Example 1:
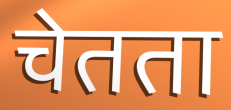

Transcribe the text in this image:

चेतता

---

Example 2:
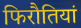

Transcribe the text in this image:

फिरौतियां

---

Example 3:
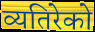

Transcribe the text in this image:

व्यतिरेको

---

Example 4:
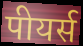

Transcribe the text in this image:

पीयर्स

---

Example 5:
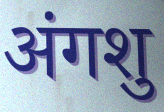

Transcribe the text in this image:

अंगशु